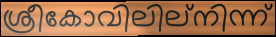
ശ്രീകോവിലില്നിന്ന്